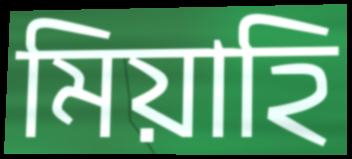
মিয়াহি